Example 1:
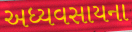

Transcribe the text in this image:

અધ્યવસાયના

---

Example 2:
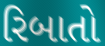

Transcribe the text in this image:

રિબાતો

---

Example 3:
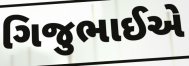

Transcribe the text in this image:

ગિજુભાઈએ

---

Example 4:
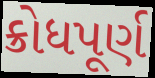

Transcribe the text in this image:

ક્રોધપૂર્ણ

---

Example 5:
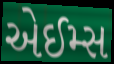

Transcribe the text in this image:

એઈમ્સ